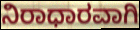
ನಿರಾಧಾರವಾಗಿ